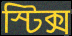
স্টিক্স